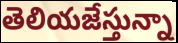
తెలియజేస్తున్నా